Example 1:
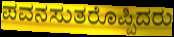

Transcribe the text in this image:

ಪವನಸುತರೊಪ್ಪಿದರು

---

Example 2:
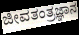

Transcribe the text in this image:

ಜೀವತಂತ್ರಜ್ಞಾನ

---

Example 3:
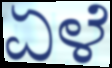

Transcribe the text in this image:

ಏಳೆ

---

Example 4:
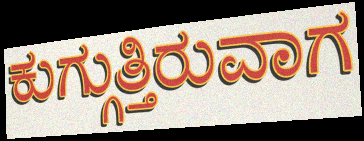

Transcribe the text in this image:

ಕುಗ್ಗುತ್ತಿರುವಾಗ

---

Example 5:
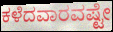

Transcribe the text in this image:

ಕಳೆದವಾರವಷ್ಟೇ